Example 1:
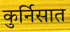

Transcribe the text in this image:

कुर्निसात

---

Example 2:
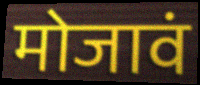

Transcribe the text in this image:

मोजावं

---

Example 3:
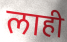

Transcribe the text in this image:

लाही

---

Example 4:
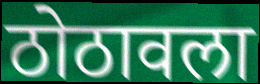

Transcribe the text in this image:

ठोठावला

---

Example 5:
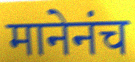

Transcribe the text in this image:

मानेनंच